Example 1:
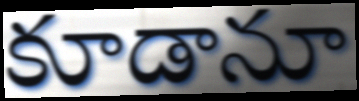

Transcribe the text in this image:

కూడానూ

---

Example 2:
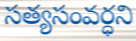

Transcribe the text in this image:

సత్యసంవర్ధని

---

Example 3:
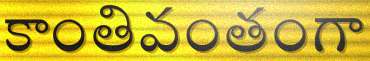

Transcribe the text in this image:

కాంతివంతంగా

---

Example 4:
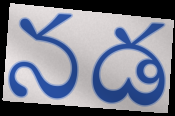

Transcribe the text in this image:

నడ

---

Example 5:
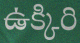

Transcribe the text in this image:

ఉక్కిరి